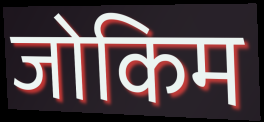
जोकिम